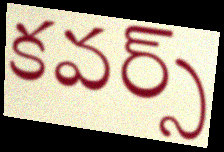
కవర్స్